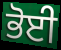
ਭੋਈ